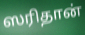
ஸரிதான்